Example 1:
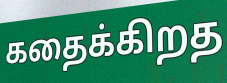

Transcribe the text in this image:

கதைக்கிறத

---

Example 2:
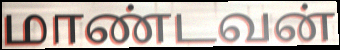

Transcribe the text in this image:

மாண்டவன்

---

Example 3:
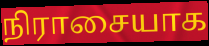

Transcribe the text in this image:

நிராசையாக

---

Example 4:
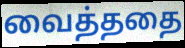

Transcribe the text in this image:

வைத்ததை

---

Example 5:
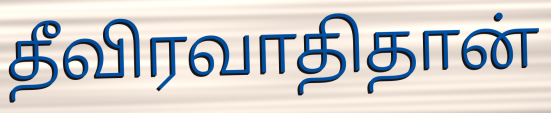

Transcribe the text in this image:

தீவிரவாதிதான்